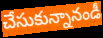
చేసుకున్నానండీ